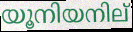
യൂനിയനില്